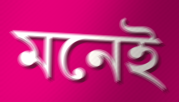
মনেই